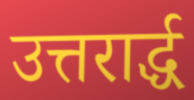
उत्तरार्द्ध